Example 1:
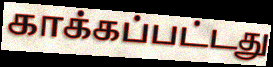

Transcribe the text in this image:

காக்கப்பட்டது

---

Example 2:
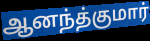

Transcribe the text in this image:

ஆனந்த்குமார்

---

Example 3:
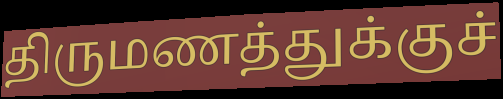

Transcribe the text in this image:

திருமணத்துக்குச்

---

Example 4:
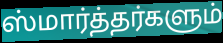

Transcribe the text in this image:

ஸ்மார்த்தர்களும்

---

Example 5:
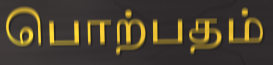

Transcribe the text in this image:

பொற்பதம்